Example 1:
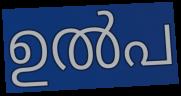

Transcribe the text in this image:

ഉൽപ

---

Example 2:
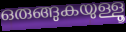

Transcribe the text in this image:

ഒരുങ്ങുകയുള്ളൂ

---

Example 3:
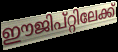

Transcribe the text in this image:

ഈജിപ്റ്റിലേക്ക്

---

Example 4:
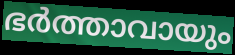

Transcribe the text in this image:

ഭർത്താവായും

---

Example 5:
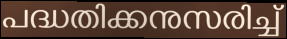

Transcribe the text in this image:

പദ്ധതിക്കനുസരിച്ച്